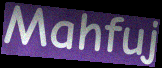
Mahfuj